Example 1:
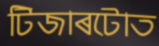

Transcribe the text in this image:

টিজাৰটোত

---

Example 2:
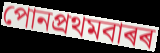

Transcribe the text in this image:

পোনপ্ৰথমবাৰৰ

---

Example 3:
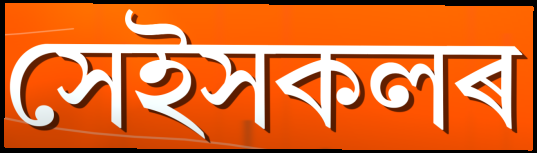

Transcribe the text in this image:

সেইসকলৰ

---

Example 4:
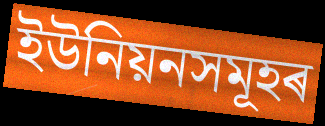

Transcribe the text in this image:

ইউনিয়নসমূহৰ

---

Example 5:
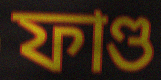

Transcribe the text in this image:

ফাণ্ড